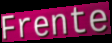
Frente